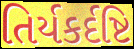
તિર્યકર્દષ્ટિ